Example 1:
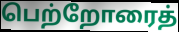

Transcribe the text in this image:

பெற்றோரைத்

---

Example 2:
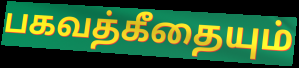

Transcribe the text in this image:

பகவத்கீதையும்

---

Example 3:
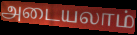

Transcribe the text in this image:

அடையலாம்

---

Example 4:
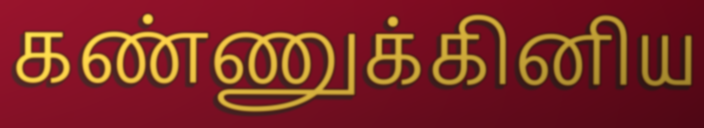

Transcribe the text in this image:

கண்ணுக்கினிய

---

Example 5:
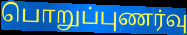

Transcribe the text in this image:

பொறுப்புணர்வு